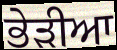
ਭੇੜੀਆ